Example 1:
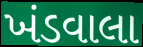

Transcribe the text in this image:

ખંડવાલા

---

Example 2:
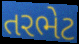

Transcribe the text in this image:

તરભેટ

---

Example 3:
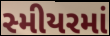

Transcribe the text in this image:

સ્મીયરમાં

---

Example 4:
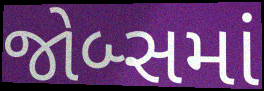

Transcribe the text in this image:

જોબ્સમાં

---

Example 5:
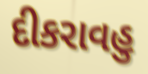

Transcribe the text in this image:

દીકરાવહુ